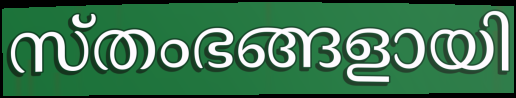
സ്തംഭങ്ങളായി